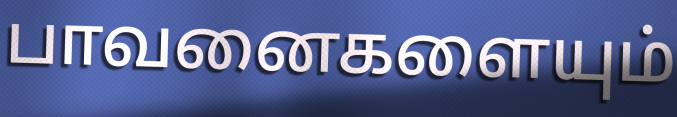
பாவனைகளையும்